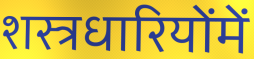
शस्त्रधारियोंमें